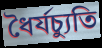
ধৈর্যচ্যুতি